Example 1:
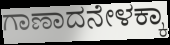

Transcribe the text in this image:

ಗಾಣಾದನೇಳಕ್ಕಾ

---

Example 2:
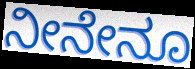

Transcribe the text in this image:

ನೀನೇನೂ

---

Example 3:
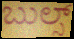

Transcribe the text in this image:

ಬುಲ್ಸ್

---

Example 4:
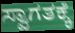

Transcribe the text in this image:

ಸ್ವಾಗತಕ್ಕೆ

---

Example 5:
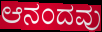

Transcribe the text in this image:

ಆನಂದವು